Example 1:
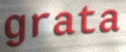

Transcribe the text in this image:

grata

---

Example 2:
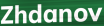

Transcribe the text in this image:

Zhdanov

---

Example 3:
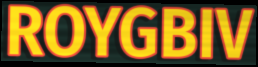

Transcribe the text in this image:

ROYGBIV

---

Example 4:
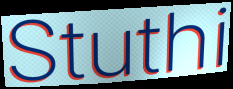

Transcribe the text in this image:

Stuthi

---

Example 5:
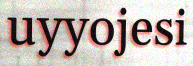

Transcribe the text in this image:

uyyojesi